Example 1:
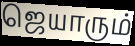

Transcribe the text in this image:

ஜெயாரும்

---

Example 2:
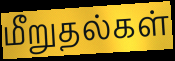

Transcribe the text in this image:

மீறுதல்கள்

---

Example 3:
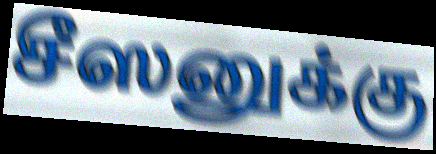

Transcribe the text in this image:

சீஸனுக்கு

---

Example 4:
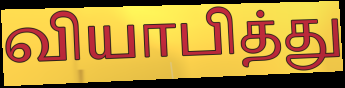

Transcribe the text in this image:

வியாபித்து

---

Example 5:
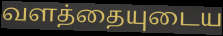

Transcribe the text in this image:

வளத்தையுடைய